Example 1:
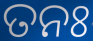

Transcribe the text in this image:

ତନଃ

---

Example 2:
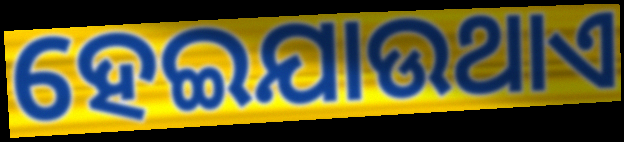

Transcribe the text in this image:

ହେଇଯାଉଥାଏ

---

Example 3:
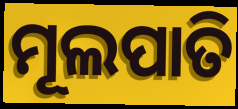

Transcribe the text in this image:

ମୂଲପାତି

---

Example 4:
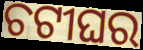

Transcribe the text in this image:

ଚଟୀଘର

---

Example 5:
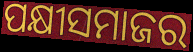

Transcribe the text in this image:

ପକ୍ଷୀସମାଜର